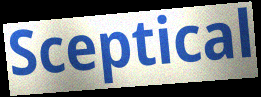
Sceptical